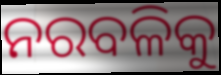
ନରବଳିକୁ